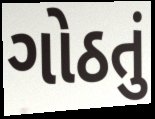
ગોઠતું